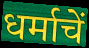
धर्माचें